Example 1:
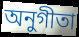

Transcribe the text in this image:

অনুগীতা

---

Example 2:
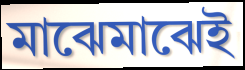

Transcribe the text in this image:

মাঝেমাঝেই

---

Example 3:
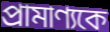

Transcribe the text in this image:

প্রামাণ্যকে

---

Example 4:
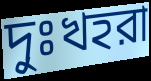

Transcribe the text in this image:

দুঃখহরা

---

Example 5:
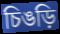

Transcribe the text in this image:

চিঙড়ি